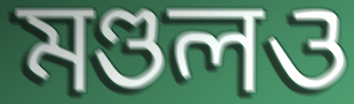
মণ্ডলও